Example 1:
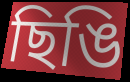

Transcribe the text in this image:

ছিঙি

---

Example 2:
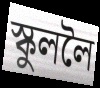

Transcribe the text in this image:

স্কুললৈ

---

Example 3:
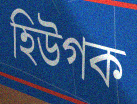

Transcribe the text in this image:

হিউগক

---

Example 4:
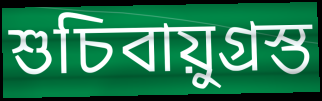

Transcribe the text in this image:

শুচিবায়ুগ্ৰস্ত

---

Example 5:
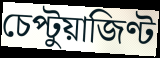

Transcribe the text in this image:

চেপ্টুয়াজিণ্ট